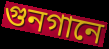
গুনগানে